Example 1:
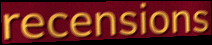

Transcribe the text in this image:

recensions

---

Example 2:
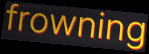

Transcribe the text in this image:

frowning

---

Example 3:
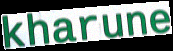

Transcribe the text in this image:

kharune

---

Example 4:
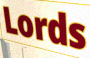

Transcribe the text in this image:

Lords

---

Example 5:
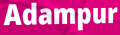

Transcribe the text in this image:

Adampur